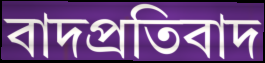
বাদপ্রতিবাদ